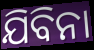
ଯିବିନା